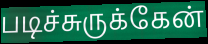
படிச்சுருக்கேன்